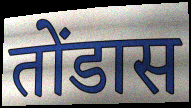
तोंडास